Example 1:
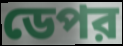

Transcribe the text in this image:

ডেপর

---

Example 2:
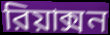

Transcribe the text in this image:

রিয়াক্সন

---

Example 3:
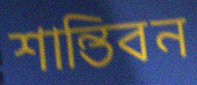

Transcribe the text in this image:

শান্তিবন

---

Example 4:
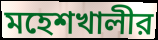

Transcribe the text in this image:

মহেশখালীর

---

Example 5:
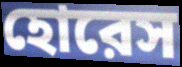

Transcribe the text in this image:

হোরেস